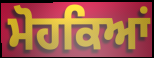
ਮੋਹਕਿਆਂ